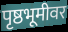
पृष्ठभूमीवर